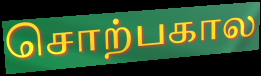
சொற்பகால